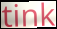
tink